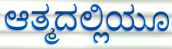
ಆತ್ಮದಲ್ಲಿಯೂ